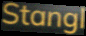
Stangl